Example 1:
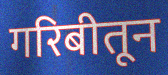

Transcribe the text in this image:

गरिबीतून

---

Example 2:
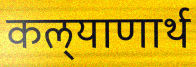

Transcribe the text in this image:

कल्याणार्थ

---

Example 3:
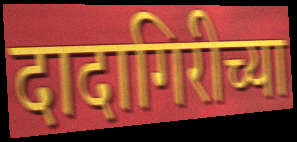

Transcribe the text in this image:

दादागिरीच्या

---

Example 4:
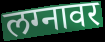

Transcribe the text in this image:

लग्नावर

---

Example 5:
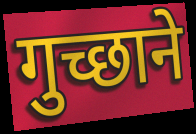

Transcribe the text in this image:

गुच्छाने